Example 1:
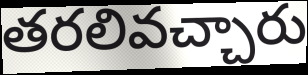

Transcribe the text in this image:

తరలివచ్చారు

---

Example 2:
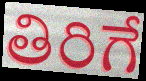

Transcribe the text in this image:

తిరిగే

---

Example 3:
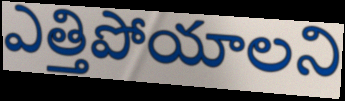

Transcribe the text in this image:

ఎత్తిపోయాలని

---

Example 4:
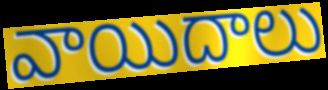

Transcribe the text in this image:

వాయిదాలు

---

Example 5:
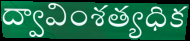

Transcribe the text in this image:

ద్వావింశత్యధిక